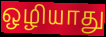
ஒழியாது